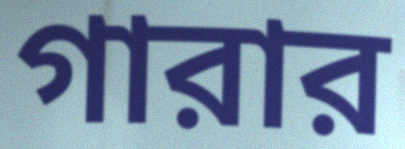
গারার